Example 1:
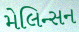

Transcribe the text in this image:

મેલિન્સન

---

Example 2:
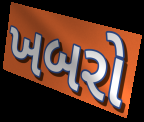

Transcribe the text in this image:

ખબરો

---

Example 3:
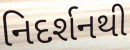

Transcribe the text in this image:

નિદર્શનથી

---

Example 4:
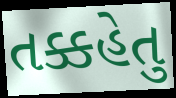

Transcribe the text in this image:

તક્કહેતુ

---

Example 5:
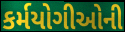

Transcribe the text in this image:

કર્મયોગીઓની